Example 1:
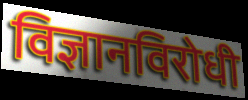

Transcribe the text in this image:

विज्ञानविरोधी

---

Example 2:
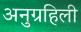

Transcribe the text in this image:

अनुग्रहिली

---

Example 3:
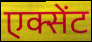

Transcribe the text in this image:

एक्सेंट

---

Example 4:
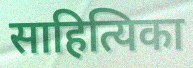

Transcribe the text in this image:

साहित्यिका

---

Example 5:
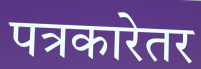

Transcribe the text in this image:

पत्रकारेतर